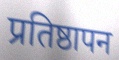
प्रतिष्ठापन